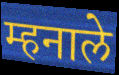
म्हनाले